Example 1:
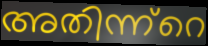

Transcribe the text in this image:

അതിന്ന്റെ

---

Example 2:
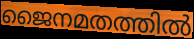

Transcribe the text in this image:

ജൈനമതത്തിൽ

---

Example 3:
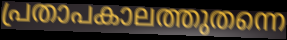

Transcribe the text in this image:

പ്രതാപകാലത്തുതന്നെ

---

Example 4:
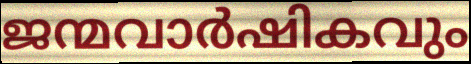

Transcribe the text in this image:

ജന്മവാർഷികവും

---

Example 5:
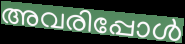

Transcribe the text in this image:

അവരിപ്പോൾ